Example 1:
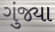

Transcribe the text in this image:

ગુંજ્યા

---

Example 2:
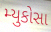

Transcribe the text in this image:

મ્યુકોસા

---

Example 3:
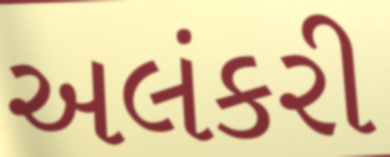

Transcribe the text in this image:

અલંકરી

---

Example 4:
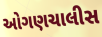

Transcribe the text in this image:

ઓગણચાલીસ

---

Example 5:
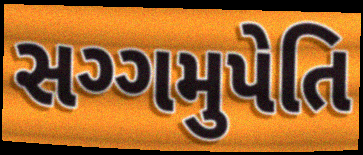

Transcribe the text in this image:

સગ્ગમુપેતિ